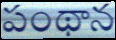
పంథాన